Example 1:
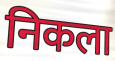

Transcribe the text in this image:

निकला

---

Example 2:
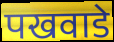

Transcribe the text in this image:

पखवाडे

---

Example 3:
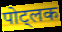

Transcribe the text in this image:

पोट्लक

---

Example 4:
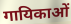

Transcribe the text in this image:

गायिकाओं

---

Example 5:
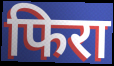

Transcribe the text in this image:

फिरा